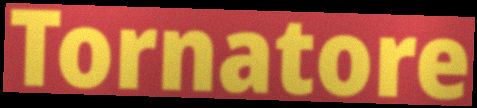
Tornatore